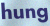
hung